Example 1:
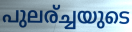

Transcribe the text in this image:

പുലര്ച്ചയുടെ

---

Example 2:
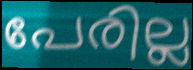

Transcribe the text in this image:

പേരില്ല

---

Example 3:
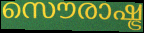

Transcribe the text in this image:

സൌരാഷ്ട്ര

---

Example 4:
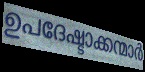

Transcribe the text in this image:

ഉപദേഷ്ടാക്കന്മാർ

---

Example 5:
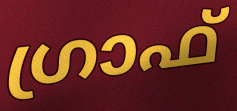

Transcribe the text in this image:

ഗ്രാഫ്